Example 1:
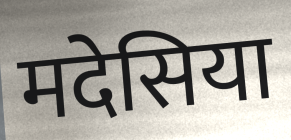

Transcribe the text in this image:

मदेसिया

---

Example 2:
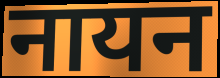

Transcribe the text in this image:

नायन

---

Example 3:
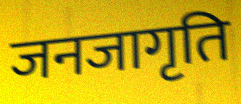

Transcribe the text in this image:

जनजागृति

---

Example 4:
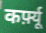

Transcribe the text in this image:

कर्फ़्यू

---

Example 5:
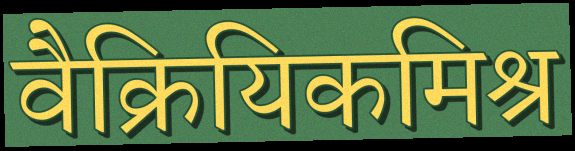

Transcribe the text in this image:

वैक्रियिकमिश्र